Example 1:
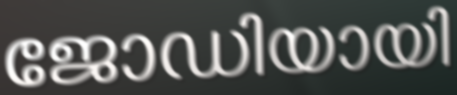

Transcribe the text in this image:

ജോഡിയായി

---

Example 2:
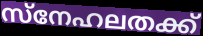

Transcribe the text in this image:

സ്നേഹലതക്ക്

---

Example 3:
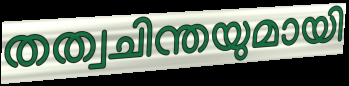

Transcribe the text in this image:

തത്വചിന്തയുമായി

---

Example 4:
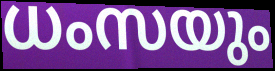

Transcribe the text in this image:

ധംസയും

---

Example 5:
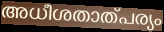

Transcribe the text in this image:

അധീശതാത്പര്യം